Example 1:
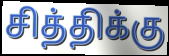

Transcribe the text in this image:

சித்திக்கு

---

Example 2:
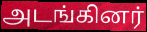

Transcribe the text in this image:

அடங்கினர்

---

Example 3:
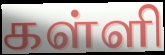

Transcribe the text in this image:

கள்ளி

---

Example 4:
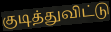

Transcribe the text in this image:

குடித்துவிட்டு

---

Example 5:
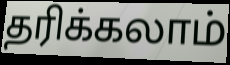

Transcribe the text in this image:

தரிக்கலாம்